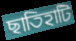
ছাতিহাটি